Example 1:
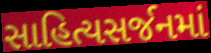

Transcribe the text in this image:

સાહિત્યસર્જનમાં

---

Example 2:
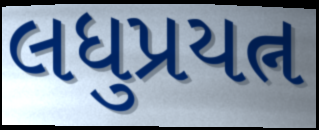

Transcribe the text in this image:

લધુપ્રયત્ન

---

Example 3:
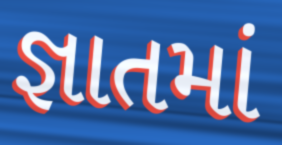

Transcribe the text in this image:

જ્ઞાતમાં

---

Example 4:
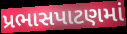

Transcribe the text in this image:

પ્રભાસપાટણમાં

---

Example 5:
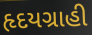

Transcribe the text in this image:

હૃદયગ્રાહી